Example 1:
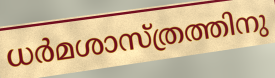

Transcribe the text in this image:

ധർമശാസ്ത്രത്തിനു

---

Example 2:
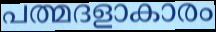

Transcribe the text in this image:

പത്മദളാകാരം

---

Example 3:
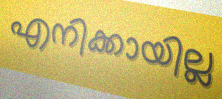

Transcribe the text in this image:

എനിക്കായില്ല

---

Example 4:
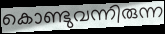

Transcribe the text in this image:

കൊണ്ടുവന്നിരുന്ന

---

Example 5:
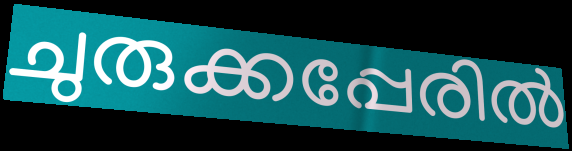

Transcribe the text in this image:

ചുരുക്കപ്പേരിൽ